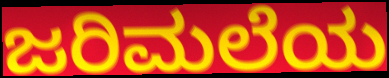
ಜರಿಮಲೆಯ